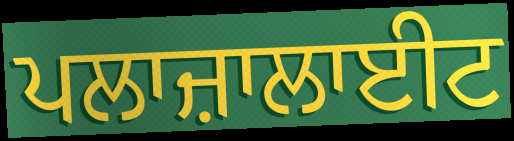
ਪਲਾਜ਼ਾਲਾਈਟ